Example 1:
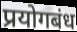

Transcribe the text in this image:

प्रयोगबंध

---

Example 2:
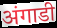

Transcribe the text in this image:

अंगाडी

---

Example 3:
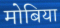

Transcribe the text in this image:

मोबिया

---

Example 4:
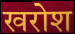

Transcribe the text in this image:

खरोश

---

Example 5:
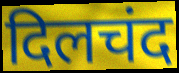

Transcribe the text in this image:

दिलचंद